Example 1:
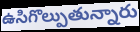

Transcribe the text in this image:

ఉసిగొల్పుతున్నారు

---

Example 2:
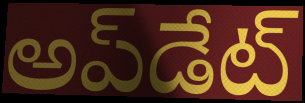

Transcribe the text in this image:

అప్‌డేట్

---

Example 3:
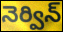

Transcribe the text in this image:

నెర్విన్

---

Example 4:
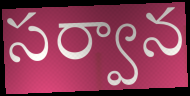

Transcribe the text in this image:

సర్వాన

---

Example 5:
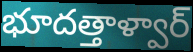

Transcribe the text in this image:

భూదత్తాళ్వార్